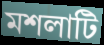
মশলাটি